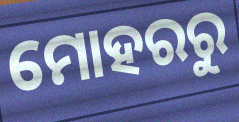
ମୋହରରୁ